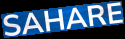
SAHARE